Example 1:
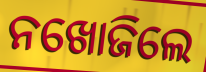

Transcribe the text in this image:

ନଖୋଜିଲେ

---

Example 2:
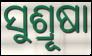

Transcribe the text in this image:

ସୁଶ୍ରୂଷା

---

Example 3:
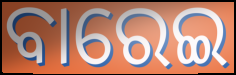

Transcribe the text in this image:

ବାରେଇ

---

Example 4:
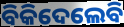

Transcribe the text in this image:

ବିକିଦେଲେବି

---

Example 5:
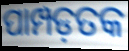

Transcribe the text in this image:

ପାମ୍ପଡ଼ତକ